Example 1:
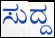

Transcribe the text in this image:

ಸುದ್ದ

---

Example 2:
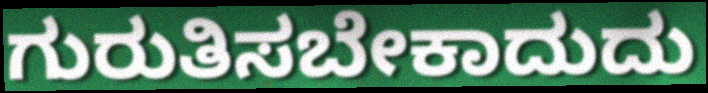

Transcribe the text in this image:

ಗುರುತಿಸಬೇಕಾದುದು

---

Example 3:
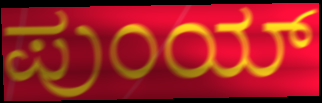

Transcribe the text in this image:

ಪುಂಯ್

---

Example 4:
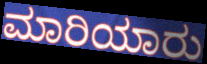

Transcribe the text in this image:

ಮಾರಿಯಾರು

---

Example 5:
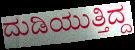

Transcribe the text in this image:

ದುಡಿಯುತ್ತಿದ್ದ